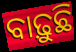
ବାଢ଼ୁଛି